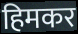
हिमकर